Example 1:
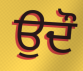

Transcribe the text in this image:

ਉਦੌ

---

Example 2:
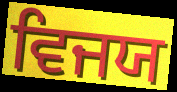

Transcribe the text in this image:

ਵਿਜਯ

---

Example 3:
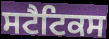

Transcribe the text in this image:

ਸਟੈਟਿਕਸ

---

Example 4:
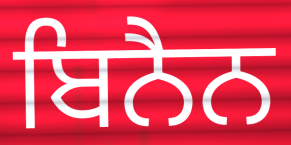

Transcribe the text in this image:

ਬਿਨੈਨ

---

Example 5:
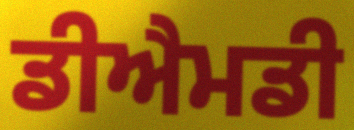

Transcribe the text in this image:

ਡੀਐਮਡੀ